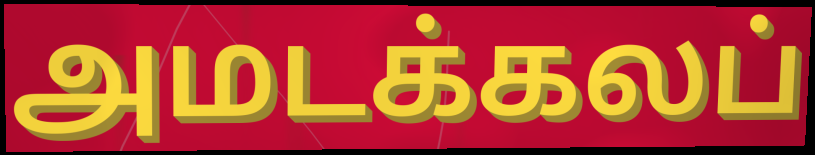
அமடக்கலப்